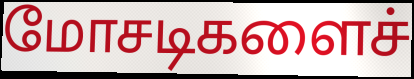
மோசடிகளைச்